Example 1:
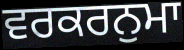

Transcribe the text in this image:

ਵਰਕਰਨੁਮਾ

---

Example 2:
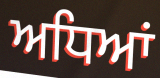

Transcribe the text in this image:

ਅਧਿਆਂ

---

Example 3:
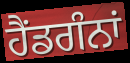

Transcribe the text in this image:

ਹੈਂਡਗੰਨਾਂ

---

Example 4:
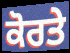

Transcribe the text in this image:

ਕੋਰਤੇ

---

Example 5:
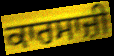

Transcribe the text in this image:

ਕਾਰਸਾਜ਼ੀ